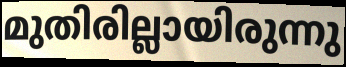
മുതിരില്ലായിരുന്നു